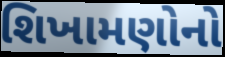
શિખામણોનો